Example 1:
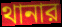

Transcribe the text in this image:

থানার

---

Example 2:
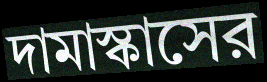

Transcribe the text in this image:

দামাস্কাসের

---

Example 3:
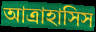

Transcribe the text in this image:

আত্রাহাসিস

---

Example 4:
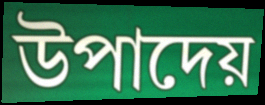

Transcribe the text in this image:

উপাদেয়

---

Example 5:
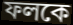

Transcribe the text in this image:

ফলকে